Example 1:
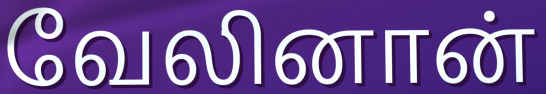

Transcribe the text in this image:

வேலினான்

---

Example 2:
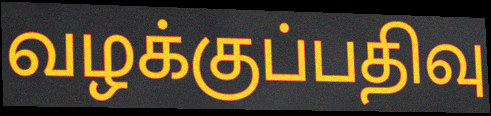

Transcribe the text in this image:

வழக்குப்பதிவு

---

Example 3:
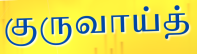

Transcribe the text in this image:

குருவாய்த்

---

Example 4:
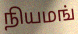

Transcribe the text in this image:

நியமங்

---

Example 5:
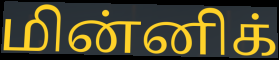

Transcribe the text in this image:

மின்னிக்